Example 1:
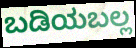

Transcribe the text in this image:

ಬಡಿಯಬಲ್ಲ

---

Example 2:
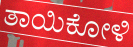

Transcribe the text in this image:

ತಾಯಿಕೋಳಿ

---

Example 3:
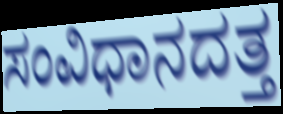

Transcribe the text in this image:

ಸಂವಿಧಾನದತ್ತ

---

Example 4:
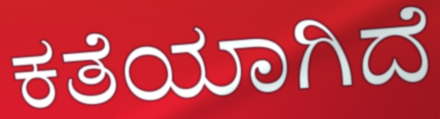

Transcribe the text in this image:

ಕತೆಯಾಗಿದೆ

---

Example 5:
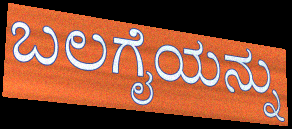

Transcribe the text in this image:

ಬಲಗೈಯನ್ನು